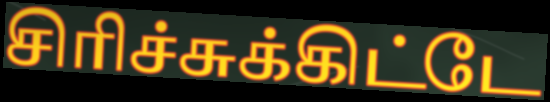
சிரிச்சுக்கிட்டே